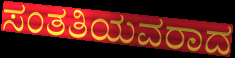
ಸಂತತಿಯವರಾದ